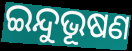
ଇନ୍ଦୁଭୂଷଣ